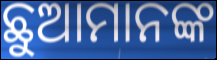
ଛୁଆମାନଙ୍କ